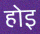
होइ